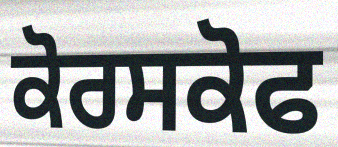
ਕੋਰਸਕੋਫ